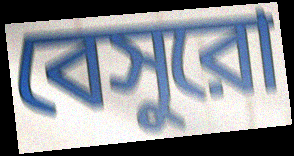
বেসুরো